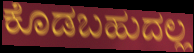
ಕೊಡಬಹುದಲ್ಲ